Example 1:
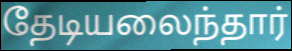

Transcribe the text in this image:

தேடியலைந்தார்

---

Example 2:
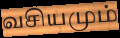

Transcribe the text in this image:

வசியமும்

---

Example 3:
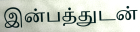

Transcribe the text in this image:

இன்பத்துடன்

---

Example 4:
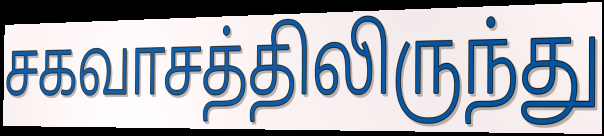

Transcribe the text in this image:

சகவாசத்திலிருந்து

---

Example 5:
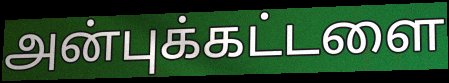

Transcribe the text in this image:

அன்புக்கட்டளை